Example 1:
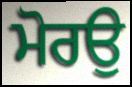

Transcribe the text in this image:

ਮੋਰਉ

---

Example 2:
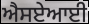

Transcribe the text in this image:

ਐਸਏਆਈ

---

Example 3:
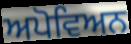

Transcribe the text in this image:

ਅਪੋਵਿਅਨ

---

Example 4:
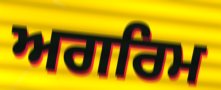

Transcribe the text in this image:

ਅਗਰਿਮ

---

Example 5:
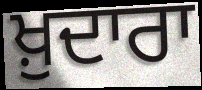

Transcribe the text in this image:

ਖ਼ੁਦਾਰਾ